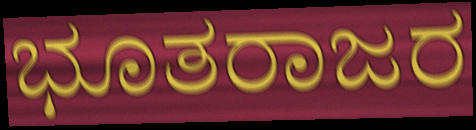
ಭೂತರಾಜರ